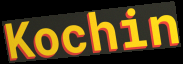
Kochin